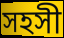
সহসী